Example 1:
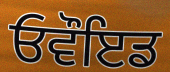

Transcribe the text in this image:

ਓਵੌਇਡ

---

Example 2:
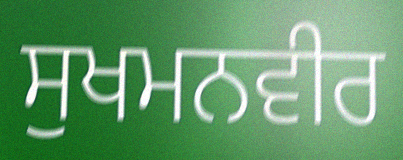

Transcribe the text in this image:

ਸੁਖਮਨਵੀਰ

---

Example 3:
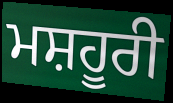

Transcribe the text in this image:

ਮਸ਼ਹੂਰੀ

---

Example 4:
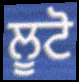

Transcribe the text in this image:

ਲੂਟੋ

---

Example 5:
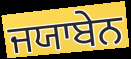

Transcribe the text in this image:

ਜਯਾਬੇਨ